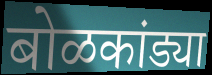
बोळकांड्या